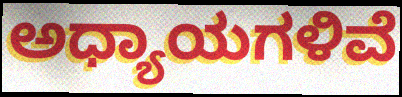
ಅಧ್ಯಾಯಗಳಿವೆ